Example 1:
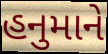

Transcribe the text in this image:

હનુમાને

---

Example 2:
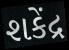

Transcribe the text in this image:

શકેંદ્ર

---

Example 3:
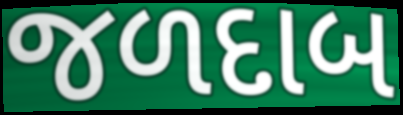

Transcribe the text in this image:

જળદાબ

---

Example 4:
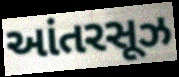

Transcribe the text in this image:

આંતરસૂઝ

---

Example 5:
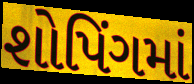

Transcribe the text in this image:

શોપિંગમાં